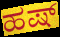
ಹಷ್